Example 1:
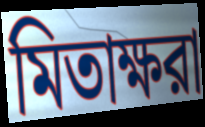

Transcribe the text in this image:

মিতাক্ষরা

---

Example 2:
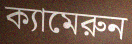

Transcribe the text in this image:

ক্যামেরুন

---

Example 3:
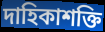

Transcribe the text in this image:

দাহিকাশক্তি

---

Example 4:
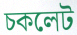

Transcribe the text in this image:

চকলেট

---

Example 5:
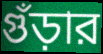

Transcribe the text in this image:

গুঁড়ার